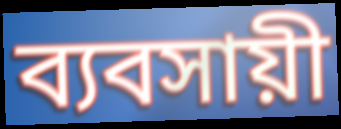
ব্যবসায়ী